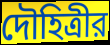
দৌহিত্রীর